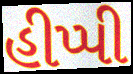
હીપ્પી